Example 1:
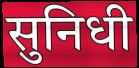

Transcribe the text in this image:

सुनिधी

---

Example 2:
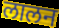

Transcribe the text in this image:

लालन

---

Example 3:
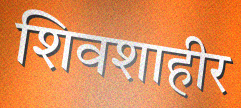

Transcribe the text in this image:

शिवशाहीर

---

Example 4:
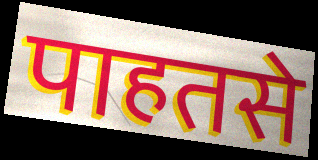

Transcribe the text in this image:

पाहतसे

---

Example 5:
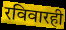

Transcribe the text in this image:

रविवारही